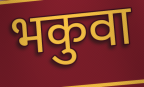
भकुवा